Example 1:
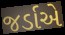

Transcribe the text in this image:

જર્ડાએ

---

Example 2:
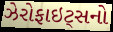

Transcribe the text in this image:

ઝેરોફાઇટ્સનો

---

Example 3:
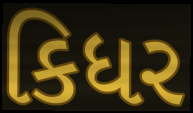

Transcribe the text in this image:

કિધર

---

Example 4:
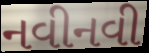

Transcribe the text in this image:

નવીનવી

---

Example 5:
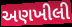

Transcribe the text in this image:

અણખીલી